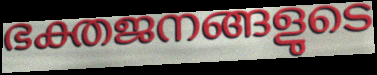
ഭക്തജനങ്ങളുടെ